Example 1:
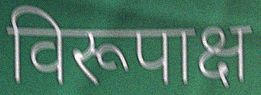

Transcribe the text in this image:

विरूपाक्ष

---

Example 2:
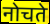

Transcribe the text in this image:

नोचते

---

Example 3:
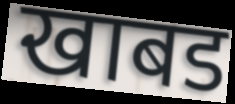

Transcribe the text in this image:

खाबड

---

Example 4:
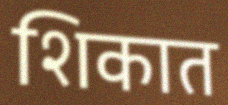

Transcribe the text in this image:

शिकात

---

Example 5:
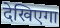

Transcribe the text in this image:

देखिएगा